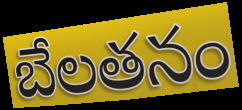
బేలతనం